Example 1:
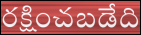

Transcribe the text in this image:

రక్షించబడేది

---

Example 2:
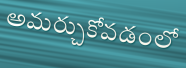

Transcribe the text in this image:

అమర్చుకోవడంలో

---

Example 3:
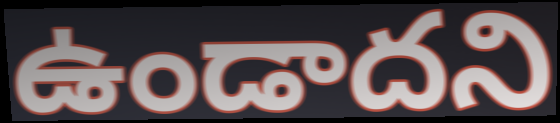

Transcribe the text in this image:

ఉండాదని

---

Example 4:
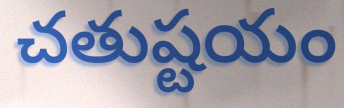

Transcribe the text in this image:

చతుష్టయం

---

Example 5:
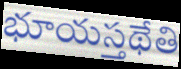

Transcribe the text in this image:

భూయస్తథేతి